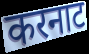
करनाट